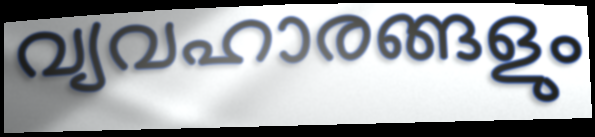
വ്യവഹാരങ്ങളും